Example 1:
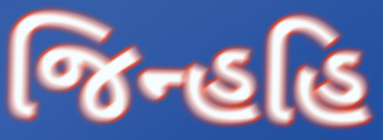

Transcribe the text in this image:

જિન્હહિ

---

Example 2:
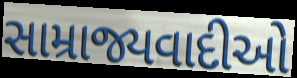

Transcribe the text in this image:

સામ્રાજ્યવાદીઓ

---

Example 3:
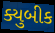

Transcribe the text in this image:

ક્યુબીક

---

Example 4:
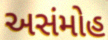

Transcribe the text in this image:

અસંમોહ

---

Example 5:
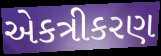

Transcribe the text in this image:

એકત્રીકરણ